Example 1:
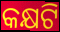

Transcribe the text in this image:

କକ୍ଷଟି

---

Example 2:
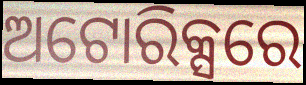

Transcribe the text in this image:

ଅଟୋରିକ୍ସରେ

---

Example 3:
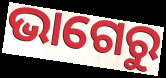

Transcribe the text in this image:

ଭାଗେରୁ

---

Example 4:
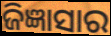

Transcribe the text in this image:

ଜିଜ୍ଞାସାର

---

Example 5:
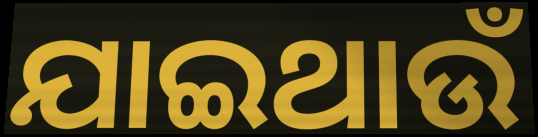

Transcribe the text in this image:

ଯାଇଥାଉଁ